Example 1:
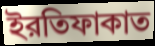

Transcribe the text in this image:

ইরতিফাকাত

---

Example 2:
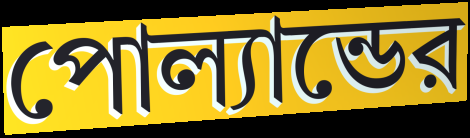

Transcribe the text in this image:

পোল্যান্ডের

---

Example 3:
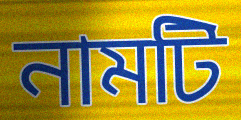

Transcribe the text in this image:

নামটি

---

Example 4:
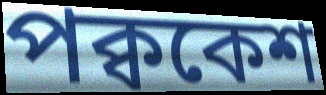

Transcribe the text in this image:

পক্বকেশ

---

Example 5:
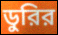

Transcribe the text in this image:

ডুরির